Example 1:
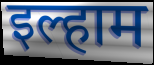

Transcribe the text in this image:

इल्हाम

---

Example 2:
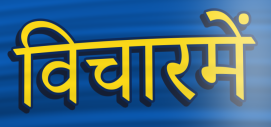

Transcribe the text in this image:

विचारमें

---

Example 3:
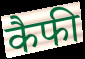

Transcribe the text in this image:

कैफी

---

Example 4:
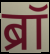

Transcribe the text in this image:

ब्रॉ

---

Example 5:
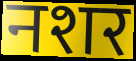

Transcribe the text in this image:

नशर